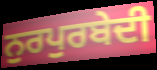
ਨੁਰਪੁਰਬੇਦੀ